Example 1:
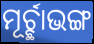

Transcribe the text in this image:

ମୂର୍ଚ୍ଛାଭଙ୍ଗ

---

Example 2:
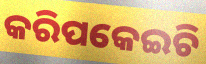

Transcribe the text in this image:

କରିପକେଇଚି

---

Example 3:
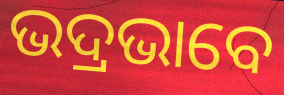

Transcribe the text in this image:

ଭଦ୍ରଭାବେ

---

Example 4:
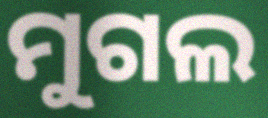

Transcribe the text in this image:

ମୁଗଲ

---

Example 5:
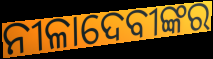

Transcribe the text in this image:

ନୀଳାଦେବୀଙ୍କର